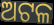
ଅଟଳ